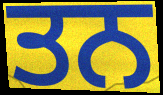
ਤਨ